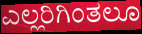
ಎಲ್ಲರಿಗಿಂತಲೂ